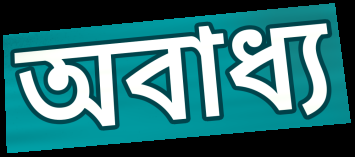
অবাধ্য